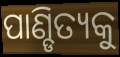
ପାଣ୍ଡିତ୍ୟକୁ